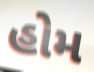
હોમ